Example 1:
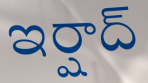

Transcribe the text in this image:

ఇర్షాద్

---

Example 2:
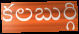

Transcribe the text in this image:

కలబుర్గి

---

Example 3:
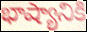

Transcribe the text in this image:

భాష్యానికి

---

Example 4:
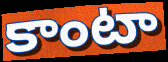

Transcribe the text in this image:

కాంటా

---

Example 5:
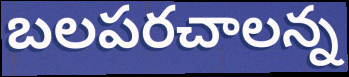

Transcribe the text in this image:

బలపరచాలన్న